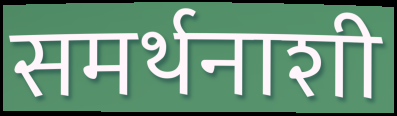
समर्थनाशी